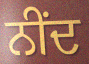
ਨੀਂਦ